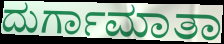
ದುರ್ಗಾಮಾತಾ